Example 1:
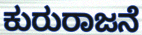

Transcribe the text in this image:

ಕುರುರಾಜನೆ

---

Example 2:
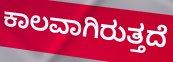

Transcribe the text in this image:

ಕಾಲವಾಗಿರುತ್ತದೆ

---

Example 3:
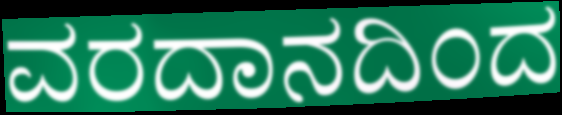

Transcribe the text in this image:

ವರದಾನದಿಂದ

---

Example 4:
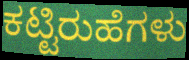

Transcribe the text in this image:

ಕಟ್ಟಿರುಹೆಗಳು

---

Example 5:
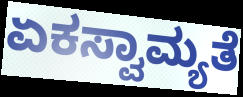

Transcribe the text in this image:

ಏಕಸ್ವಾಮ್ಯತೆ